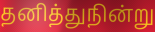
தனித்துநின்று